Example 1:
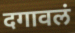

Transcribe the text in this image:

दगावलं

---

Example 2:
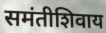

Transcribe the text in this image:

समंतीशिवाय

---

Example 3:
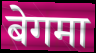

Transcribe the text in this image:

बेगमा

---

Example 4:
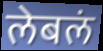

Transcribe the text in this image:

लेबलं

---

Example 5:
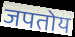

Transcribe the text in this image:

जपतोय